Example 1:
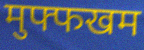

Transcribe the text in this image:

मुफ्फखम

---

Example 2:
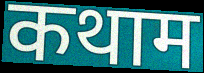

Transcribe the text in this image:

कथाम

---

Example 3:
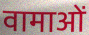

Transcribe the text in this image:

वामाओं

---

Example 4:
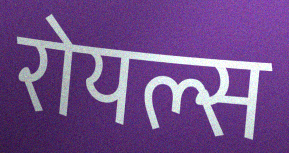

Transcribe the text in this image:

रोयल्स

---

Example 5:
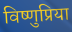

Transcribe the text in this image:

विष्णुप्रिया